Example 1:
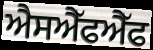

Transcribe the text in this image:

ਐਸਐੱਫਐੱਫ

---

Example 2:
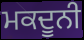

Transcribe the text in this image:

ਮਕਦੂਨੀ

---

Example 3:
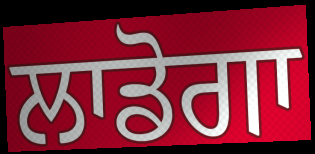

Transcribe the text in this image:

ਲਾਡੋਗਾ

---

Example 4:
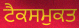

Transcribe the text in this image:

ਟੈਕਸਮੁਕਤ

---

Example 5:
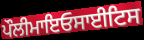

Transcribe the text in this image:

ਪੌਲੀਮਾਇਓਸਾਈਟਿਸ